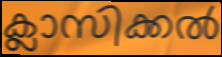
ക്ലാസിക്കൽ